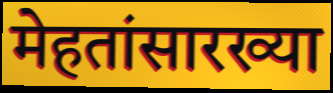
मेहतांसारख्या